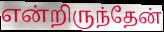
என்றிருந்தேன்